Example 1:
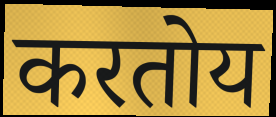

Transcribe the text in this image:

करतोय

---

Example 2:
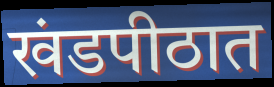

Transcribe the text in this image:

खंडपीठात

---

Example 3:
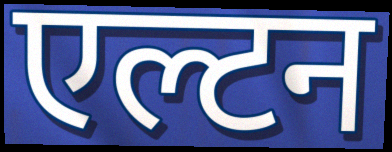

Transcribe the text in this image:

एल्टन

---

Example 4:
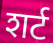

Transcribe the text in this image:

शर्ट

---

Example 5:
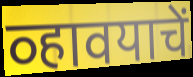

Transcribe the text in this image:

व्हावयाचें